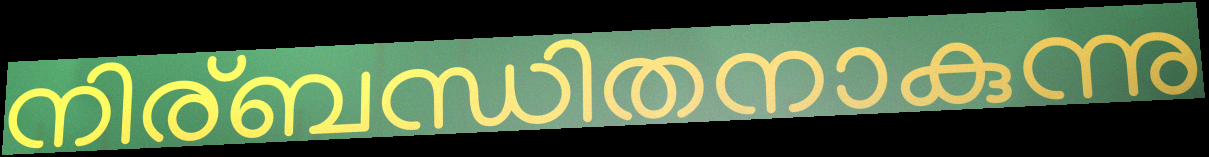
നിര്ബന്ധിതനാകുന്നു